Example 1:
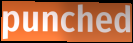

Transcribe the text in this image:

punched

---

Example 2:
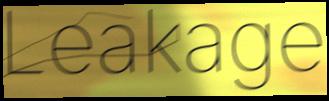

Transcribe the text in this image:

Leakage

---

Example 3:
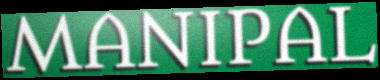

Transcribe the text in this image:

MANIPAL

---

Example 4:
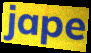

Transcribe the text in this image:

jape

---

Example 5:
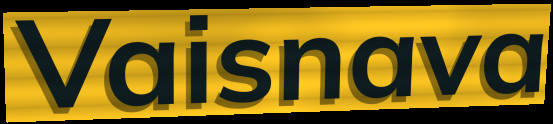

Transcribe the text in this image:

Vaisnava